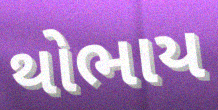
થોભાય